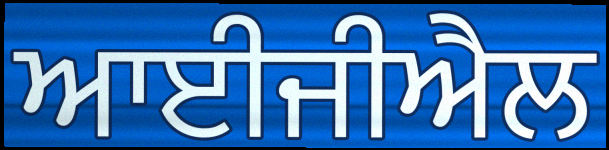
ਆਈਜੀਐਲ